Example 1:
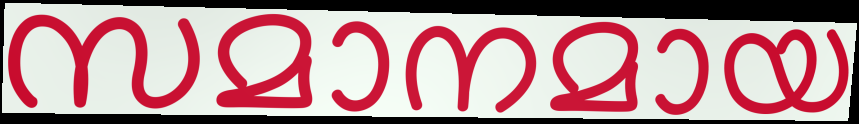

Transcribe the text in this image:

സമാനമായ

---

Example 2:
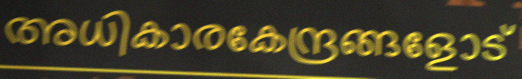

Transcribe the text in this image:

അധികാരകേന്ദ്രങ്ങളോട്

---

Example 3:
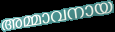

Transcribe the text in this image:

അമ്മാവനായ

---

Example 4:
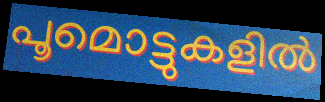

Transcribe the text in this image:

പൂമൊട്ടുകളിൽ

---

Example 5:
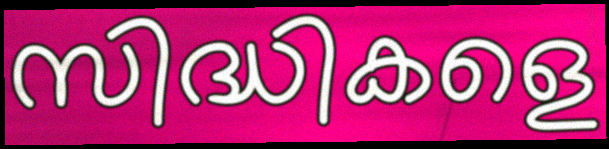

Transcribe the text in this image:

സിദ്ധികളെ